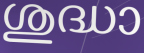
ശുദ്ധാ